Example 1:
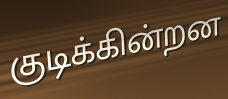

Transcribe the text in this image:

குடிக்கின்றன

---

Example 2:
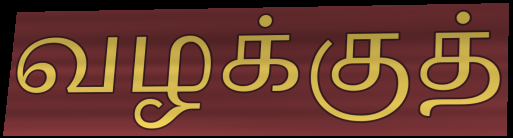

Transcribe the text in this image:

வழக்குத்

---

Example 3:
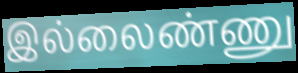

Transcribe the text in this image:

இல்லைண்ணு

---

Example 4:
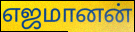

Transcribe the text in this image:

எஜமானன்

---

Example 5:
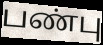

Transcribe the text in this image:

பண்பு